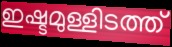
ഇഷ്ടമുള്ളിടത്ത്